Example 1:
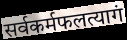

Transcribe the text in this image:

सर्वकर्मफलत्यागं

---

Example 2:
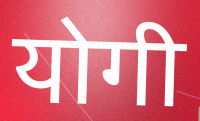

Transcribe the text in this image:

योगी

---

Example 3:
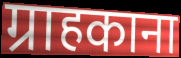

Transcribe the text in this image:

ग्राहकाना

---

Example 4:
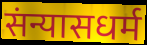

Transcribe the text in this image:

संन्यासधर्म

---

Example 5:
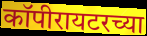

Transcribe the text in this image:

कॉपीरायटरच्या